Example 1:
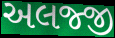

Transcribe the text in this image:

અલજ્જી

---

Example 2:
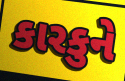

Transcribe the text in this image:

કારકુને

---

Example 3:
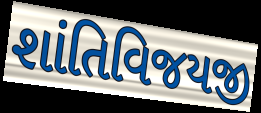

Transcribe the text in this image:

શાંતિવિજયજી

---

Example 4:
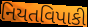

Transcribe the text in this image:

નિયતવિપાકી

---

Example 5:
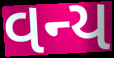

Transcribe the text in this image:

વન્ય